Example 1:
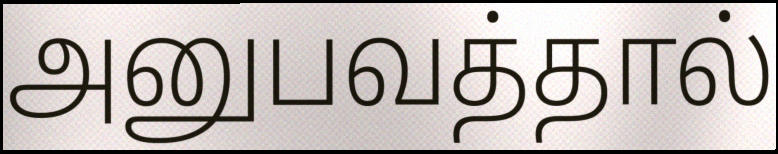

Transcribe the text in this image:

அனுபவத்தால்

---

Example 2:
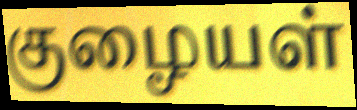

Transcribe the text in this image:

குழையள்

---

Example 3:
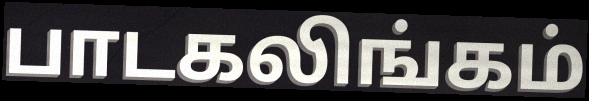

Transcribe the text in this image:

பாடகலிங்கம்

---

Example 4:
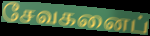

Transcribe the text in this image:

சேவகனைப்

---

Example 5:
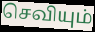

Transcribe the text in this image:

செவியும்